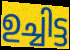
ഉച്ചിട്ട